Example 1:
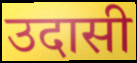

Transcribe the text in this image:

उदासी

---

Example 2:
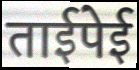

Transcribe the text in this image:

ताईपेई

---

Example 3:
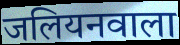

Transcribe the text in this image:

जलियनवाला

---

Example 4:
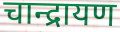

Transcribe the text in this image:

चान्द्रायण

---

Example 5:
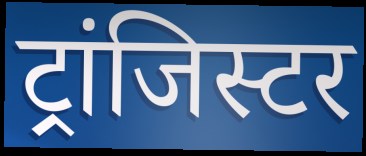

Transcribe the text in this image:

ट्रांजिस्टर